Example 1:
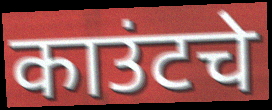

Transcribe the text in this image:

काउंटचे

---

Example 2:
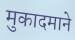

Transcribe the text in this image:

मुकादमाने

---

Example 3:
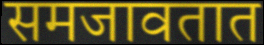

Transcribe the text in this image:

समजावतात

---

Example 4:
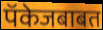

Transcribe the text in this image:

पॅकेजबाबत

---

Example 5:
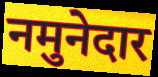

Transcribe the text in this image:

नमुनेदार